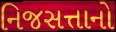
નિજસત્તાનો